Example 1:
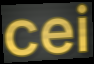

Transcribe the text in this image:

cei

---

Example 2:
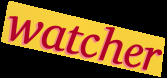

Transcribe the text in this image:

watcher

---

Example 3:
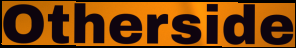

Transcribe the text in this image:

Otherside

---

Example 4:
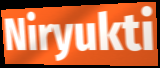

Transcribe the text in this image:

Niryukti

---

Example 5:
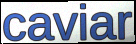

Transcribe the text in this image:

caviar